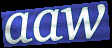
aaw